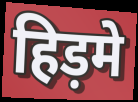
हिड़मे